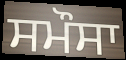
ਸਮੌਸਾ